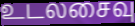
உடலசைவு